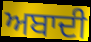
ਅਬਾਦੀ